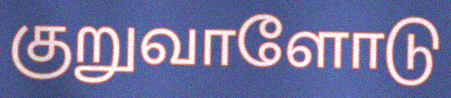
குறுவாளோடு